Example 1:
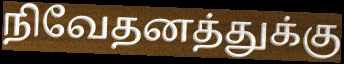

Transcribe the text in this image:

நிவேதனத்துக்கு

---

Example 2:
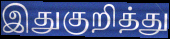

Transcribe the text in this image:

இதுகுறித்து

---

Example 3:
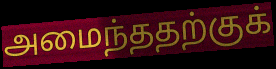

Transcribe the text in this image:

அமைந்ததற்குக்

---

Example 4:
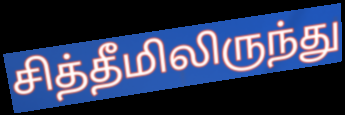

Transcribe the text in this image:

சித்தீமிலிருந்து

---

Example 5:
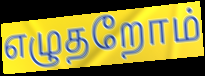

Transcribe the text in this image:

எழுதறோம்